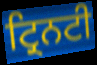
ਟ੍ਰਿਨਟੀ